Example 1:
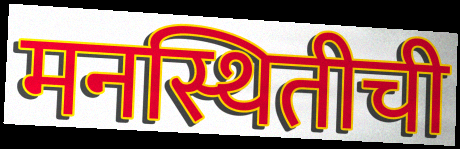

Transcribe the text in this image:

मनस्थितीची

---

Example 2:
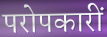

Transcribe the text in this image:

परोपकारीं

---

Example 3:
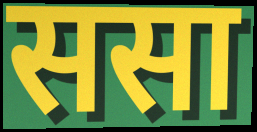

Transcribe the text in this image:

ससा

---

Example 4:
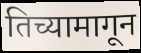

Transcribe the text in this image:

तिच्यामागून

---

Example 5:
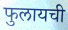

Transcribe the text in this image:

फुलायची